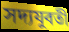
সদ্যযুবতী